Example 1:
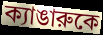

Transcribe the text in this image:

ক্যাঙারুকে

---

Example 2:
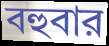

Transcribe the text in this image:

বহুবার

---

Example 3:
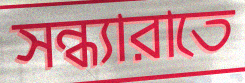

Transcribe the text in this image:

সন্ধ্যারাতে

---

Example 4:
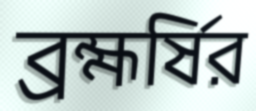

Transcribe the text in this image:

ব্রহ্মর্ষির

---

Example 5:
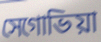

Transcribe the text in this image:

সেগোভিয়া